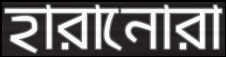
হারানোরা